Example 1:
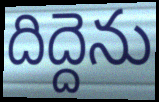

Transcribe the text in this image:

దిద్దెను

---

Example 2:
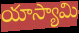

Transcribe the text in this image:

యాస్యామి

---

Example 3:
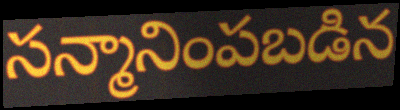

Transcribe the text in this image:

సన్మానింపబడిన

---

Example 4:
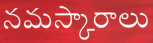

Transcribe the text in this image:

నమస్కారాలు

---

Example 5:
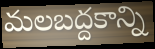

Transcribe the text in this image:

మలబద్దకాన్ని